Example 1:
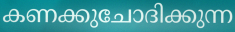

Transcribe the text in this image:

കണക്കുചോദിക്കുന്ന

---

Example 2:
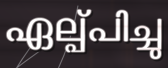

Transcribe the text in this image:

ഏല്പ്പിച്ചു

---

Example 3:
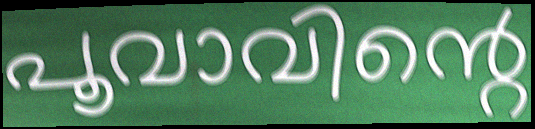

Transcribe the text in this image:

പൂവാവിന്റെ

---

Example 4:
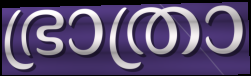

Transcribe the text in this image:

ഭ്രാത്രാ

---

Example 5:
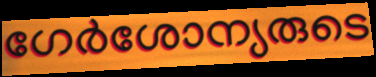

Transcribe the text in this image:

ഗേർശോന്യരുടെ